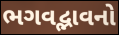
ભગવદ્ભાવનો